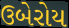
ઉબેરોય